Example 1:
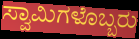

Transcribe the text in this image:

ಸ್ವಾಮಿಗಳೊಬ್ಬರು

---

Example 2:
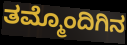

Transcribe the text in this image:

ತಮ್ಮೊಂದಿಗಿನ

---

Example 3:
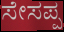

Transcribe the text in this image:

ಸೇಸಪ್ಪ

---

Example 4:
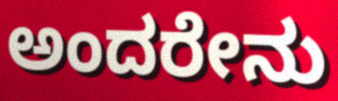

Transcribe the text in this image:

ಅಂದರೇನು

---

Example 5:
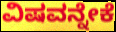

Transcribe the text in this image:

ವಿಷವನ್ನೇಕೆ